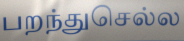
பறந்துசெல்ல